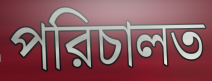
পরিচালত